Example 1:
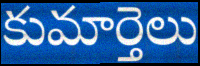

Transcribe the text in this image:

కుమార్తెలు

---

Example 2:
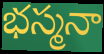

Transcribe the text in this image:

భస్మనా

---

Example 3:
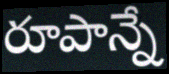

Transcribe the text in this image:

రూపాన్నే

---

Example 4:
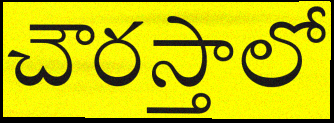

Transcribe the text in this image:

చౌరస్తాలో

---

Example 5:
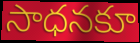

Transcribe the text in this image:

సాధనకూ